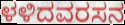
ಳಳಿದವರಸನ